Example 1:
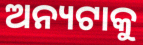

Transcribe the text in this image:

ଅନ୍ୟଟାକୁ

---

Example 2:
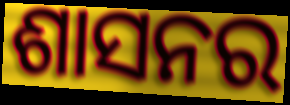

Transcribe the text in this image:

ଶାସନର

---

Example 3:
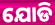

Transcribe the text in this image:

ଯୋଡି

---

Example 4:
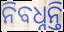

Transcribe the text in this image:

ନିବଧ୍ନନ୍ତି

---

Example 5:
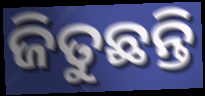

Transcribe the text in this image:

ଜିତୁଛନ୍ତି